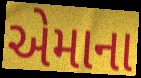
એમાના